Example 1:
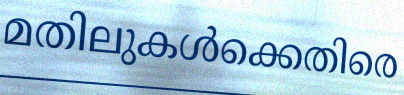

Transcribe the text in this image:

മതിലുകൾക്കെതിരെ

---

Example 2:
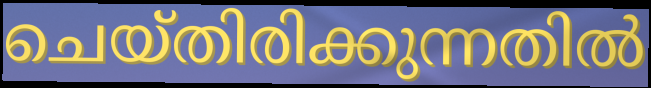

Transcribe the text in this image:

ചെയ്തിരിക്കുന്നതിൽ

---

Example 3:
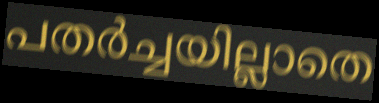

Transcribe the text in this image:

പതർച്ചയില്ലാതെ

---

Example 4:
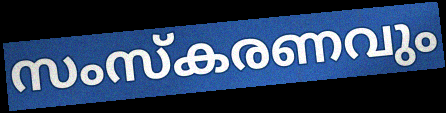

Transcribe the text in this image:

സംസ്കരണവും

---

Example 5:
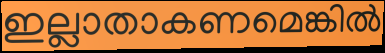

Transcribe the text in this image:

ഇല്ലാതാകണമെങ്കിൽ